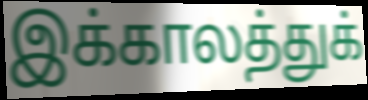
இக்காலத்துக்